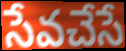
సేవచేసే